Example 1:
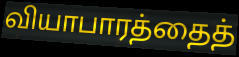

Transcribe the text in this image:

வியாபாரத்தைத்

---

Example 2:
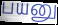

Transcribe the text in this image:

பயனு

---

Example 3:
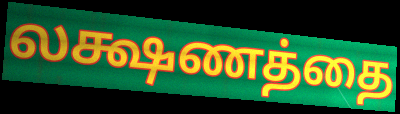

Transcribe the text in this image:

லக்ஷணத்தை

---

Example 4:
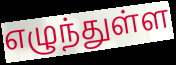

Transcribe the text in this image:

எழுந்துள்ள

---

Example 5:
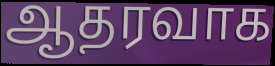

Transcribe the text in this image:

ஆதரவாக